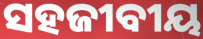
ସହଜୀବୀୟ